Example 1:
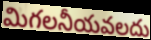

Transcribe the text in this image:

మిగలనీయవలదు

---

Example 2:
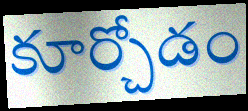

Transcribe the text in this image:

కూర్చోడం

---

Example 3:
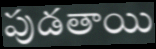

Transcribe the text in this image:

పుడతాయి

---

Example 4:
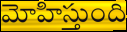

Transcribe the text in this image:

మోహిస్తుంది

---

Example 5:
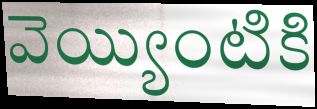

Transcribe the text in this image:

వెయ్యింటికి